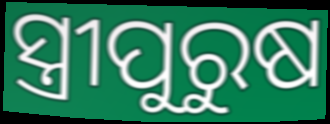
ସ୍ତ୍ରୀପୁରୁଷ